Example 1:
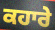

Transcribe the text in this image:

ਕਹਾਰੇ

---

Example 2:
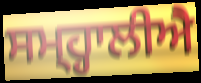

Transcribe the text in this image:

ਸਮ੍ਹ੍ਹਾਲੀਐ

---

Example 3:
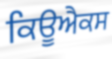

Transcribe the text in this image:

ਕਿਊਐਕਸ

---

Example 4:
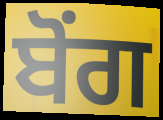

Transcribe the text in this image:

ਬੋਂਗ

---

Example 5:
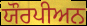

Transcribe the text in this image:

ਯੌਰਪੀਅਨ